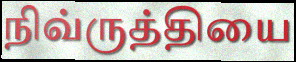
நிவ்ருத்தியை